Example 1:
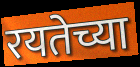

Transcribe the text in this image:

रयतेच्या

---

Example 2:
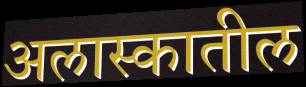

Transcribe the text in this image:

अलास्कातील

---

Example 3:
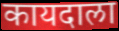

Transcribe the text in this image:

कायदाला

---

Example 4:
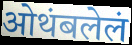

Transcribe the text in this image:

ओथंबलेलं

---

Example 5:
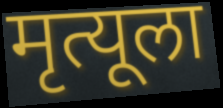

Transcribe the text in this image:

मृत्यूला